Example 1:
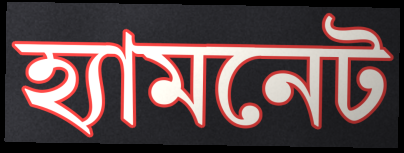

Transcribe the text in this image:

হ্যামনেট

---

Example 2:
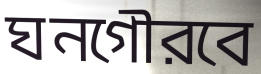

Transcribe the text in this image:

ঘনগৌরবে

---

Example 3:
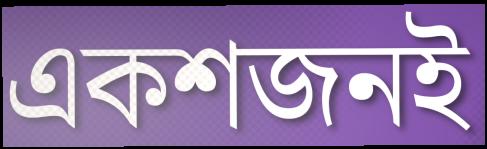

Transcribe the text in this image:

একশজনই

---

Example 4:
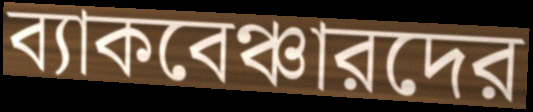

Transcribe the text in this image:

ব্যাকবেঞ্চারদের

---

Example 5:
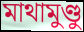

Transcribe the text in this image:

মাথামুণ্ডু